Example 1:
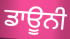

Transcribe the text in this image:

ਡਾਊਨੀ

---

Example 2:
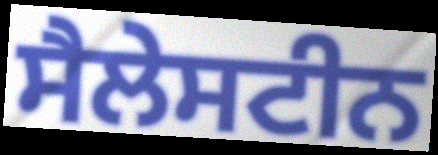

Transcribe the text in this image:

ਸੈਲੇਸਟੀਨ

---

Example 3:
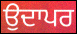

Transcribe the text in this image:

ਉਦਾਪਰ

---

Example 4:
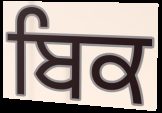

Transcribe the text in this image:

ਬਿਕ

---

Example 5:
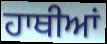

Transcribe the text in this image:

ਹਾਥੀਆਂ